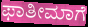
ಫಾತೀಮಾಗೆ